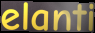
elanti